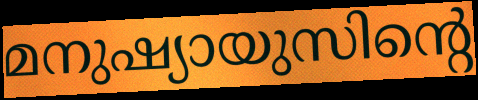
മനുഷ്യായുസിന്റെ